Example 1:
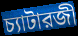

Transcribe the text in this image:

চ্যাটারজী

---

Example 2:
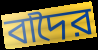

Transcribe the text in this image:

বাদৈর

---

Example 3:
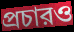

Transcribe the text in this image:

প্রচারও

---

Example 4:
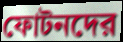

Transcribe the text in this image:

ফোটনদের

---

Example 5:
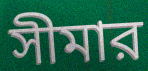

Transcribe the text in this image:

সীমার